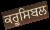
ਕਰੂਸਿਬਲ